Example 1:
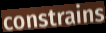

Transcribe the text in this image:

constrains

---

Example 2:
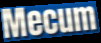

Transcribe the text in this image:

Mecum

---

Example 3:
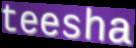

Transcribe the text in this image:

teesha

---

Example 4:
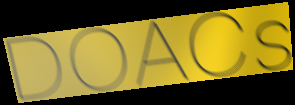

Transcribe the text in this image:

DOACs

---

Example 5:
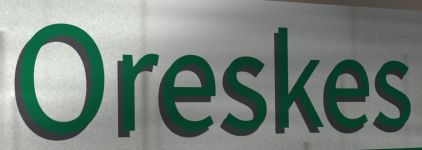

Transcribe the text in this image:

Oreskes